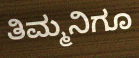
ತಿಮ್ಮನಿಗೂ